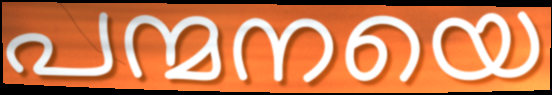
പന്മനയെ